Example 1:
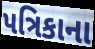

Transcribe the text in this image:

પત્રિકાના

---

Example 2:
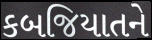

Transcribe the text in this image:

કબજિયાતને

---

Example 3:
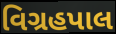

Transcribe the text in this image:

વિગ્રહપાલ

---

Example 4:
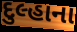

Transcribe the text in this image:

દુલ્હાના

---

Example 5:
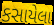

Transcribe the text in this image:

કસાયેલા